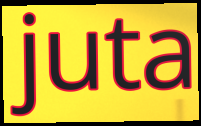
juta